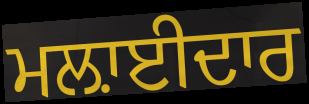
ਮਲ਼ਾਈਦਾਰ